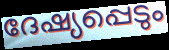
ദേഷ്യപ്പെടും